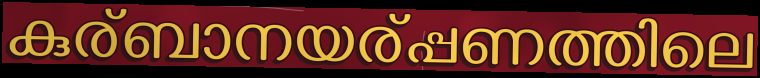
കുര്ബാനയര്പ്പണത്തിലെ